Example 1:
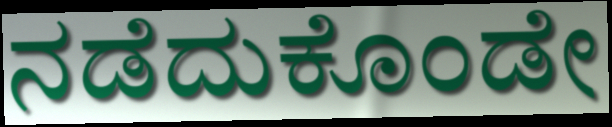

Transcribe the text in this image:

ನಡೆದುಕೊಂಡೇ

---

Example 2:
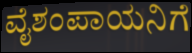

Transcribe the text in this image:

ವೈಶಂಪಾಯನಿಗೆ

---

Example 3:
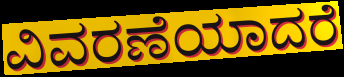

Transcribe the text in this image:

ವಿವರಣೆಯಾದರೆ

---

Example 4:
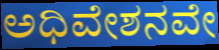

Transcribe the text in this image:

ಅಧಿವೇಶನವೇ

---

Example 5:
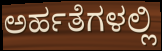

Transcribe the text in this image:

ಅರ್ಹತೆಗಳಲ್ಲಿ